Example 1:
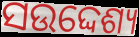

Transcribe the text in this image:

ସଉଦ୍ଦେଶ୍ୟ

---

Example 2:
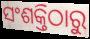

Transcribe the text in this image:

ସଂଶକ୍ତିଠାରୁ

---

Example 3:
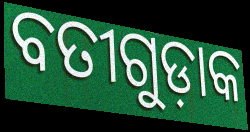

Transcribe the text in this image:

ବତୀଗୁଡ଼ାକ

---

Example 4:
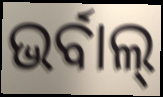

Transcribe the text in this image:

ଭର୍ବାଲ୍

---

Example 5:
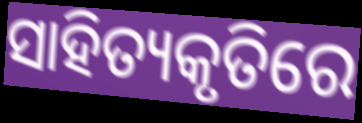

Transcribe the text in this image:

ସାହିତ୍ୟକୃତିରେ